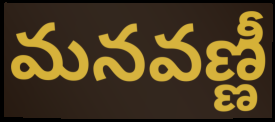
మనవణ్ణీ